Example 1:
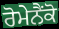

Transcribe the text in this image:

ਰੋਮੇਨੈਂਕੋ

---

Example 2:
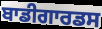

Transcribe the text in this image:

ਬਾਡੀਗਾਰਡਸ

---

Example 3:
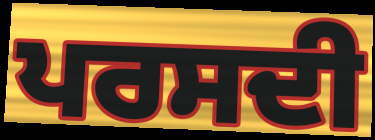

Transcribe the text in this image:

ਪਰਸਦੀ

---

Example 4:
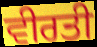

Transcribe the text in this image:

ਵੀਰਤੀ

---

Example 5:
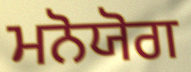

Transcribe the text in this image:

ਮਨੋਯੋਗ